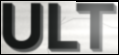
ULT